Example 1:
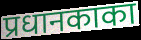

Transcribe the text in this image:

प्रधानकाका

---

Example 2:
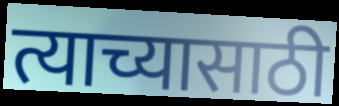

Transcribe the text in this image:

त्याच्यासाठी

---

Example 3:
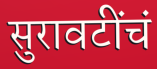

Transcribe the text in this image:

सुरावटींचं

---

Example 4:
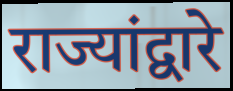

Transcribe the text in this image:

राज्यांद्वारे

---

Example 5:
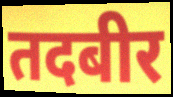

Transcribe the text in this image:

तदबीर